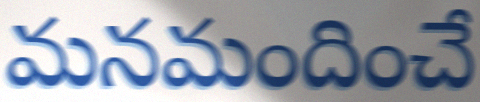
మనమందించే